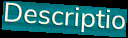
Descriptio